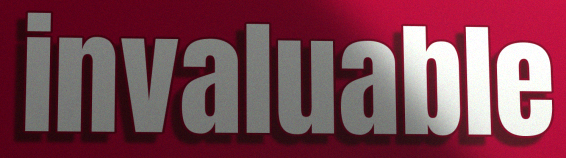
invaluable